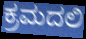
ಕ್ರಮದಲಿ